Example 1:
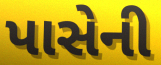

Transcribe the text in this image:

પાસેની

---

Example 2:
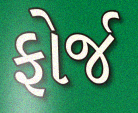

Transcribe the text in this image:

ફોર્જ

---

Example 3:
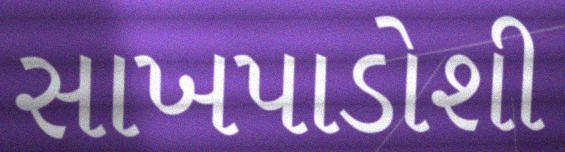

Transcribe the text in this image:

સાખપાડોશી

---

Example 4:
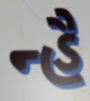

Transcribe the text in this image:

ન્હૈ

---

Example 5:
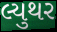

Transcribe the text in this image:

લ્યુથર